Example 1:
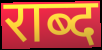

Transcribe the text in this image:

राब्द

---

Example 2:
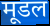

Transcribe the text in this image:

मूडल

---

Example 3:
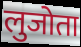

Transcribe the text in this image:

लुजोता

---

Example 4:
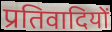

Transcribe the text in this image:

प्रतिवादियों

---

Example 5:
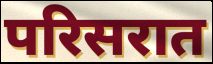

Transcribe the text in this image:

परिसरात